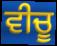
ਵੀਚੂ